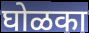
घोळका